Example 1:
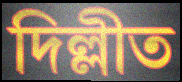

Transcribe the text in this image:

দিল্লীত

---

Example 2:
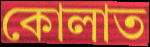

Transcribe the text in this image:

কোলাত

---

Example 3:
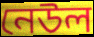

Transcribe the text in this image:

নেউল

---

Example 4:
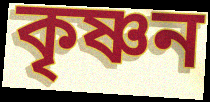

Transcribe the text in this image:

কৃষ্ণন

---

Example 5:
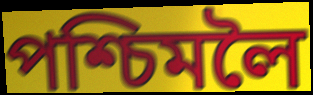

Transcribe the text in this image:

পশ্চিমলৈ